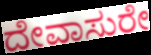
ದೇವಾಸುರೇ